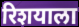
रिशयाला